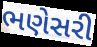
ભણેસરી